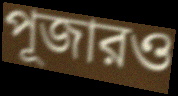
পূজারও